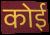
कोई